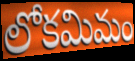
లోకమిమం